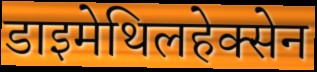
डाइमेथिलहेक्सेन